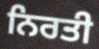
ਨਿਰਤੀ